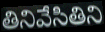
తినివేసితిని